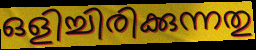
ഒളിച്ചിരിക്കുന്നതു